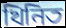
খিনিত